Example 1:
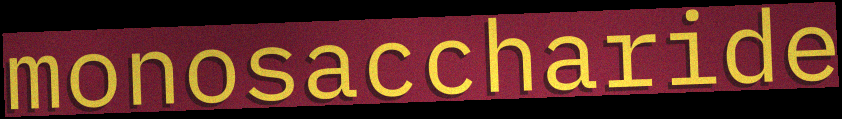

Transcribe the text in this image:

monosaccharide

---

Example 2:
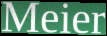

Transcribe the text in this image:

Meier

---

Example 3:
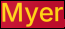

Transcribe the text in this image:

Myer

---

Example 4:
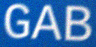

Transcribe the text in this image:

GAB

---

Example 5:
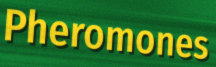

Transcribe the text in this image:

Pheromones